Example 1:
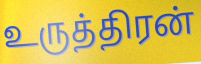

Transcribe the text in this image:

உருத்திரன்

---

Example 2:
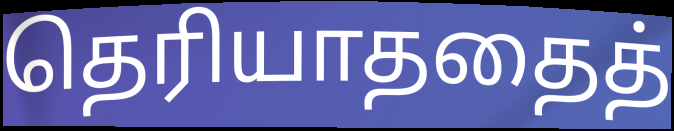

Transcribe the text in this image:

தெரியாததைத்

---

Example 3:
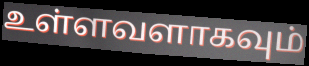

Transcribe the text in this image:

உள்ளவளாகவும்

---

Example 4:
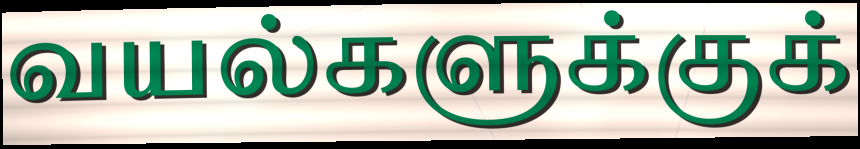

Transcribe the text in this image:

வயல்களுக்குக்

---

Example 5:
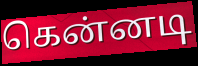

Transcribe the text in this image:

கென்னடி